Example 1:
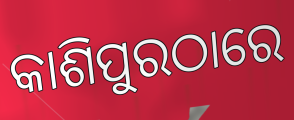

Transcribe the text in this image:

କାଶିପୁରଠାରେ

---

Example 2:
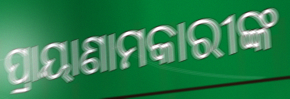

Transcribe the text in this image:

ପ୍ରାୟାଣାମକାରୀଙ୍କ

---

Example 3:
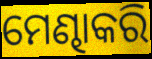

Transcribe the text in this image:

ମେଣ୍ଢାକରି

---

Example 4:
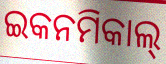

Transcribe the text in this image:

ଇକନମିକାଲ୍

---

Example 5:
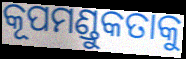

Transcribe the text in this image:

କୂପମଣ୍ଡୁକତାକୁ